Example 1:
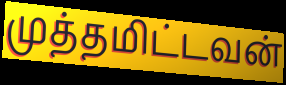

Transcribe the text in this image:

முத்தமிட்டவன்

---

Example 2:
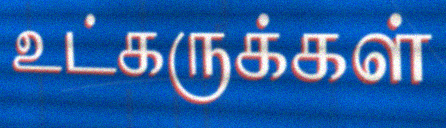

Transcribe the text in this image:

உட்கருக்கள்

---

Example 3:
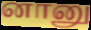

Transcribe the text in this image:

னானு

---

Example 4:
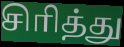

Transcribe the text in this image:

சிரித்து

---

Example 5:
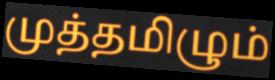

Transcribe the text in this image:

முத்தமிழும்